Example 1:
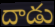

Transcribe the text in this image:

దాడు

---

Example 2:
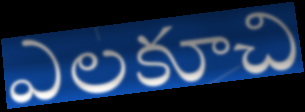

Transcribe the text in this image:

ఎలకూచి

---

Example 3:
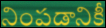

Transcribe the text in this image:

నింపడానికీ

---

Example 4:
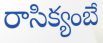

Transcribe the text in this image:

రాసిక్యంబే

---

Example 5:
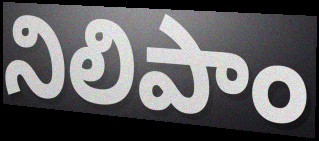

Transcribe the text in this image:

నిలిపాం